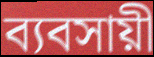
ব্যবসায়ী